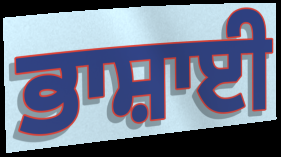
ਭਾਸ਼ਾਈ